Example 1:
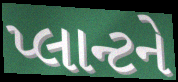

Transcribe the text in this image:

પ્લાન્ટને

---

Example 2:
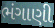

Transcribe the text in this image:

ભંગાણી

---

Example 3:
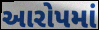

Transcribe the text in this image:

આરોપમાં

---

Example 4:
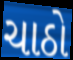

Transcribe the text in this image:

ચાઠો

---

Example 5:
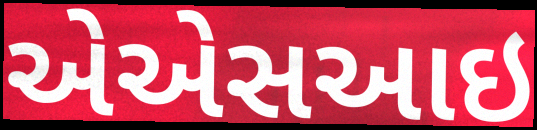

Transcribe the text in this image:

એએસઆઇ